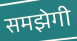
समझेगी